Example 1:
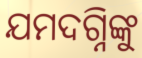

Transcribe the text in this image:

ଯମଦଗ୍ନିଙ୍କୁ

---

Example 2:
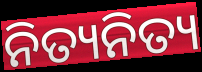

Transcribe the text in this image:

ନିତ୍ୟନିତ୍ୟ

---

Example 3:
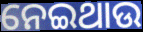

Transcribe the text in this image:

ନେଇଥାଉ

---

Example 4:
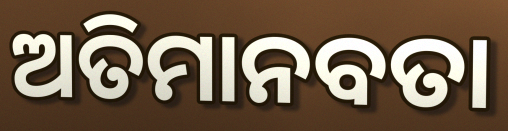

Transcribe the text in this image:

ଅତିମାନବତା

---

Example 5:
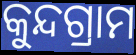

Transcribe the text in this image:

କୁନ୍ଦଗ୍ରାମ